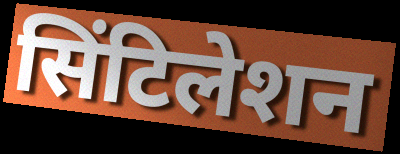
सिंटिलेशन